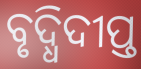
ବୃଦ୍ଧିଦୀପ୍ତ